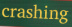
crashing